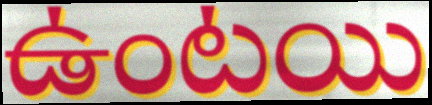
ఉంటయి